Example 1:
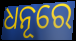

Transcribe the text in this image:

ଧନୂରେ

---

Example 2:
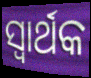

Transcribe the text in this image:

ସ୍ବାର୍ଥକ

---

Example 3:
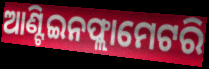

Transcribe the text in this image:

ଆଣ୍ଟିଇନଫ୍ଲାମେଟରି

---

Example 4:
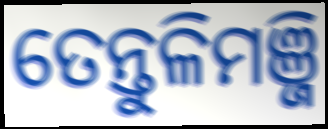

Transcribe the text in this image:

ତେନ୍ତୁଳିମଞ୍ଜି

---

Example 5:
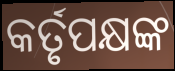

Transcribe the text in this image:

କର୍ତୃପକ୍ଷଙ୍କ